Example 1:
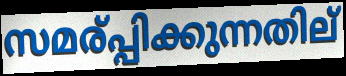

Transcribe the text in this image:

സമര്പ്പിക്കുന്നതില്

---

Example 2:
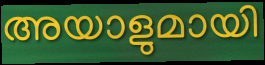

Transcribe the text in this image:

അയാളുമായി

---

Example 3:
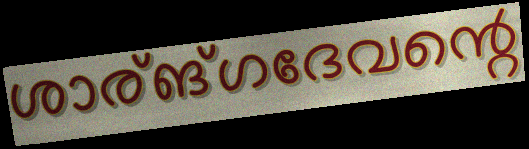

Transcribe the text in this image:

ശാര്ങ്ഗദേവന്റെ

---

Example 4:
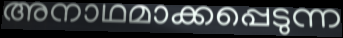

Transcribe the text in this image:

അനാഥമാക്കപ്പെടുന്ന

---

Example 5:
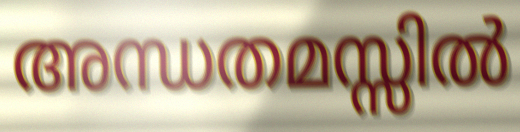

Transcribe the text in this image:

അന്ധതമസ്സിൽ